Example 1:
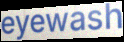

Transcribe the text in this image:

eyewash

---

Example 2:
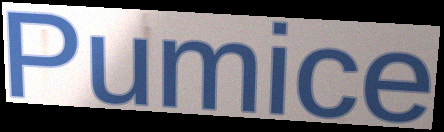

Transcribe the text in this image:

Pumice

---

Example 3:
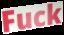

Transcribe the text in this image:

Fuck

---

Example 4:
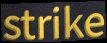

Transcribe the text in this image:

strike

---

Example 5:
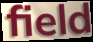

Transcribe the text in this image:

field